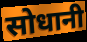
सोधानी